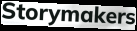
Storymakers